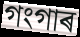
গংগাৰ